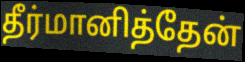
தீர்மானித்தேன்